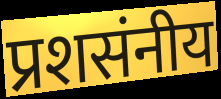
प्रशसंनीय